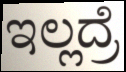
ಇಲ್ಲದ್ರೆ